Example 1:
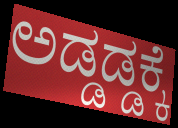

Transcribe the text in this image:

ಅಡ್ಡಡ್ಡಕ್ಕೆ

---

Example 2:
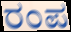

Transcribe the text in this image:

ರಂಪ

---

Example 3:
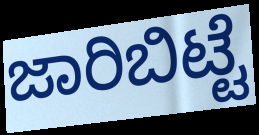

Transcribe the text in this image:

ಜಾರಿಬಿಟ್ಟೆ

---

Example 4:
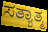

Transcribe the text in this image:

ಸತ್ಯಾತ್ಮ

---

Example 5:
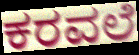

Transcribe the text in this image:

ಕರವಲೆ